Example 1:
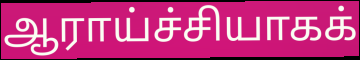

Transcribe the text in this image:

ஆராய்ச்சியாகக்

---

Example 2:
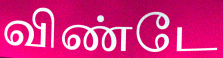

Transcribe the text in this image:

விண்டே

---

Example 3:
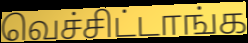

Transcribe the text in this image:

வெச்சிட்டாங்க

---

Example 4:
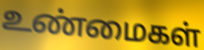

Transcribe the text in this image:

உண்மைகள்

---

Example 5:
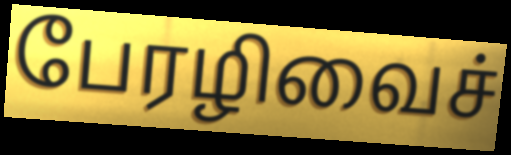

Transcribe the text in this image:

பேரழிவைச்